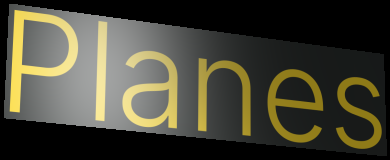
Planes